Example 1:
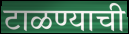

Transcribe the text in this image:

टाळण्याची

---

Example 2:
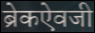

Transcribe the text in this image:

ब्रेकऐवजी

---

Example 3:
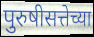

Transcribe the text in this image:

पुरुषीसत्तेच्या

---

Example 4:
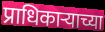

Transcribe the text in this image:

प्राधिकाऱ्याच्या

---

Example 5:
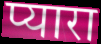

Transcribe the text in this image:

प्यारा